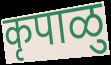
कृपाळु